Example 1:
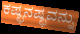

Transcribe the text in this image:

ಕಷ್ಟನಷ್ಟವನ್ನು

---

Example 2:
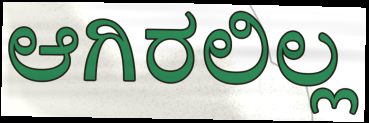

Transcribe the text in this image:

ಆಗಿರಲಿಲ್ಲ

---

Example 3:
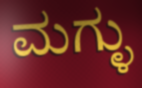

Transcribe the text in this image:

ಮಗ್ಳು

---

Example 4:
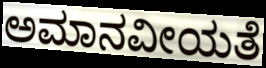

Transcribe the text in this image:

ಅಮಾನವೀಯತೆ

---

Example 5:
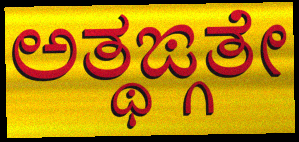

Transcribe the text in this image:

ಅತ್ಥಙ್ಗತೇ